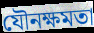
যৌনক্ষমতা